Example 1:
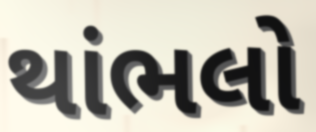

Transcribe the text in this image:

થાંભલો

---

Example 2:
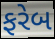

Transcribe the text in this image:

ફરેબ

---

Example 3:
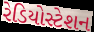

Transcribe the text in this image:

રેડિયોસ્ટેશન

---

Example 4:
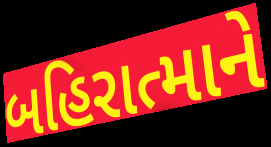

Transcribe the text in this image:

બહિરાત્માને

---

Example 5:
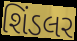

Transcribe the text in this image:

શિંડલર